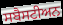
ਸਬੈਸਟੀਅਨ